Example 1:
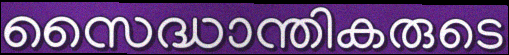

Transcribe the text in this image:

സൈദ്ധാന്തികരുടെ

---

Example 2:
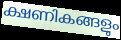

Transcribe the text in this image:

ക്ഷണികങ്ങളും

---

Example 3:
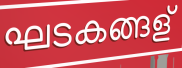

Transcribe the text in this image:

ഘടകങ്ങള്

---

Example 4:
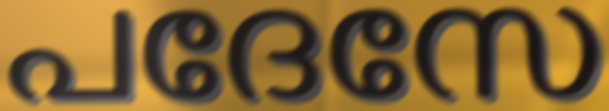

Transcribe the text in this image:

പദേസേ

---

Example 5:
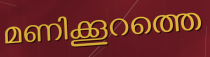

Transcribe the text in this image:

മണിക്കൂറത്തെ